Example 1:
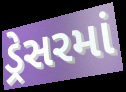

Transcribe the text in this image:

ડ્રેસરમાં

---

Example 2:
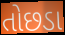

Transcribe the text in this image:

તોછડા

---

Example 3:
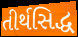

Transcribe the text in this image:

તીર્થસિદ્ધ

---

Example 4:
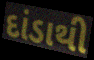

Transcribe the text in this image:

દાંડાથી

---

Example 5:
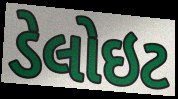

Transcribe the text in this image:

ડેલોઇટ